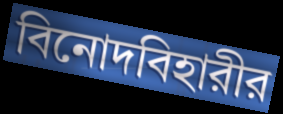
বিনোদবিহারীর